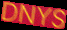
DNYS